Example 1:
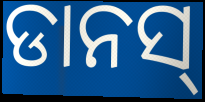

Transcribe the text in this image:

ଡାନସ୍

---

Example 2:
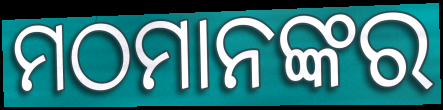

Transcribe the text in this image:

ମଠମାନଙ୍କର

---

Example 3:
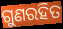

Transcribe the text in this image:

ଗୁଣରହିତ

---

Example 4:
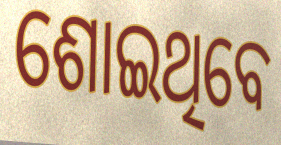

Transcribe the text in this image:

ଶୋଇଥିବେ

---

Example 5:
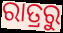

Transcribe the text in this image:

ରାତ୍ରରୁ